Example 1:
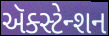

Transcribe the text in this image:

ઍક્સ્ટેન્શન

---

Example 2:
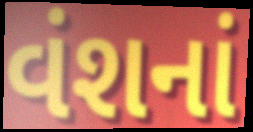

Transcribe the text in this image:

વંશનાં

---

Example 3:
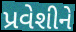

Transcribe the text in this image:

પ્રવેશીને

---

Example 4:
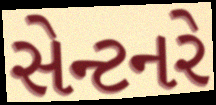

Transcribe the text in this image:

સેન્ટનરે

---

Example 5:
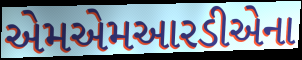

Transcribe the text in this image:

એમએમઆરડીએના